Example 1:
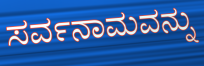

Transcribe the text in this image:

ಸರ್ವನಾಮವನ್ನು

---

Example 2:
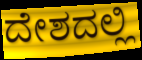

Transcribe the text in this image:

ದೇಶದಲ್ಲಿ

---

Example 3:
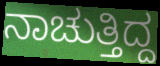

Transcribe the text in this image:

ನಾಚುತ್ತಿದ್ದ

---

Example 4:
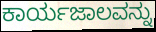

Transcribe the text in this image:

ಕಾರ್ಯಜಾಲವನ್ನು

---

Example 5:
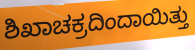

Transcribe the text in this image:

ಶಿಖಾಚಕ್ರದಿಂದಾಯಿತ್ತು